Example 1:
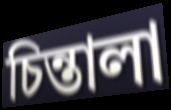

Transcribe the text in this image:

চিন্তালা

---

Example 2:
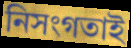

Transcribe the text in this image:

নিসংগতাই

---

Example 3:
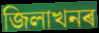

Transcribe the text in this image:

জিলাখনৰ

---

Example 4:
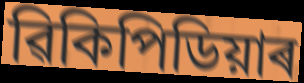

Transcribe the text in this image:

ৱিকিপিডিয়াৰ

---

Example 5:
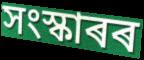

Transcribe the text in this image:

সংস্কাৰৰ